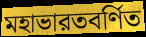
মহাভারতবর্ণিত